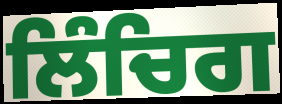
ਲਿੰਚਿਗ